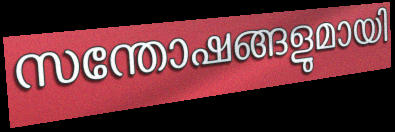
സന്തോഷങ്ങളുമായി